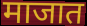
माजात